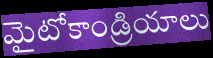
మైటోకాండ్రియాలు